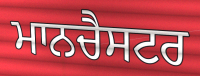
ਮਾਨਚੈਸਟਰ